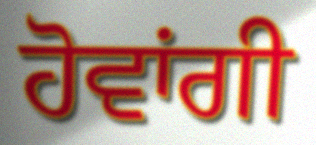
ਹੋਵਾਂਗੀ